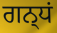
ਗਨ੍ਧਂ